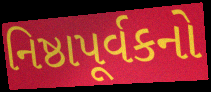
નિષ્ઠાપૂર્વકનો